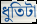
ধুতিটা